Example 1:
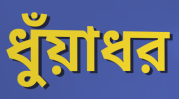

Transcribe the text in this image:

ধুঁয়াধর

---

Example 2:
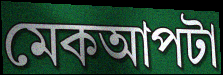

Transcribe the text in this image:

মেকআপটা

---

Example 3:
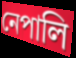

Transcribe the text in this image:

নেপালি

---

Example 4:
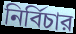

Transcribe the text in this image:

নির্বিচার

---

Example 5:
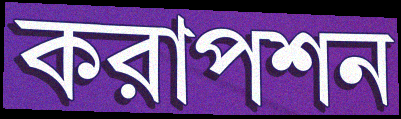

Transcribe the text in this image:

করাপশন